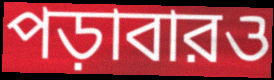
পড়াবারও